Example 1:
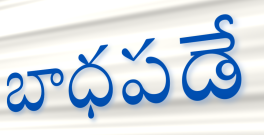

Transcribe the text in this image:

బాధపడే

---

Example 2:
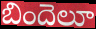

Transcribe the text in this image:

బిందెలూ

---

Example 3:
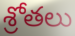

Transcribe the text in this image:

శ్రోతలు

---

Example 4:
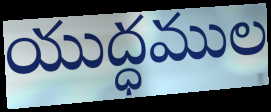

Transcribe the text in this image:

యుద్ధముల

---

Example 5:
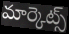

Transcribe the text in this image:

మార్కెట్స్